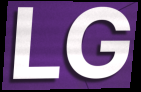
LG